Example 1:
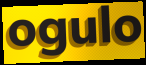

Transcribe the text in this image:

ogulo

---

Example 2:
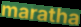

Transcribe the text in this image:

maratha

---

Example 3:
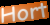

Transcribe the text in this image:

Hort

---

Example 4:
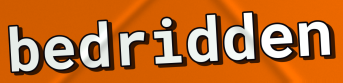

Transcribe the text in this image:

bedridden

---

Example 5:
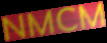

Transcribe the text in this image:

NMCM